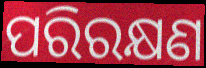
ପରିରକ୍ଷଣ